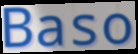
Baso